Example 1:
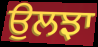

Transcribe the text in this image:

ਉਲਝਾ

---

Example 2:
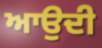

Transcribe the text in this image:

ਆਉਦੀ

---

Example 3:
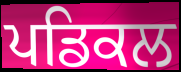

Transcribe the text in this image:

ਪਡਿਕਲ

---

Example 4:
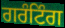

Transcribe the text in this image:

ਗਰੰਟਿੰਗ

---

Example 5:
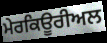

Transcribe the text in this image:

ਮੇਰਕਿਊਰੀਅਲ